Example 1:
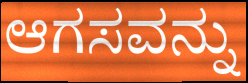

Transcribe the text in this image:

ಆಗಸವನ್ನು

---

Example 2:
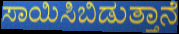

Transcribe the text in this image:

ಸಾಯಿಸಿಬಿಡುತ್ತಾನೆ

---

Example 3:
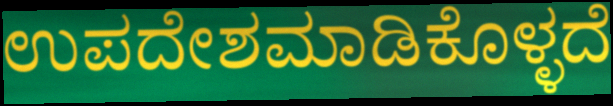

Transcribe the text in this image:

ಉಪದೇಶಮಾಡಿಕೊಳ್ಳದೆ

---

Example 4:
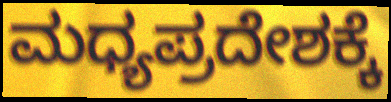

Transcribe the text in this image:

ಮಧ್ಯಪ್ರದೇಶಕ್ಕೆ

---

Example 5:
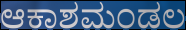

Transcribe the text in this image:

ಆಕಾಶಮಂಡಲ